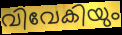
വിവേകിയും